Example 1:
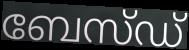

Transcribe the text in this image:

ബേസ്ഡ്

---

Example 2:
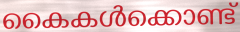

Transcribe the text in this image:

കൈകൾക്കൊണ്ട്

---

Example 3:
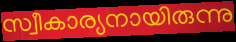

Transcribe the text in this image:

സ്വീകാര്യനായിരുന്നു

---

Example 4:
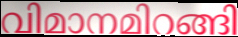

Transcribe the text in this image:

വിമാനമിറങ്ങി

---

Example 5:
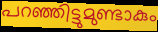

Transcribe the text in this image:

പറഞ്ഞിട്ടുമുണ്ടാകും